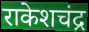
राकेशचंद्र